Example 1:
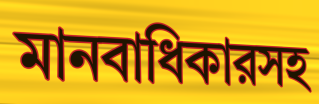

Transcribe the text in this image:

মানবাধিকারসহ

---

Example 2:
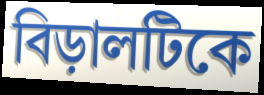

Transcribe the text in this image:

বিড়ালটিকে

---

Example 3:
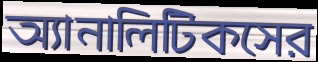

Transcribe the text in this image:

অ্যানালিটিকসের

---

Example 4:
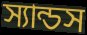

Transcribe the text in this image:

স্যান্ডস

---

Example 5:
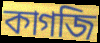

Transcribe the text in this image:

কাগজি